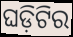
ଘଡ଼ିଟିର